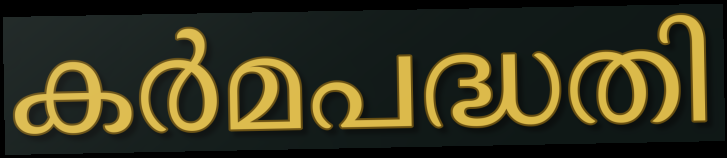
കർമപദ്ധതി